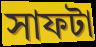
সাফটা